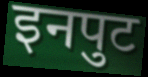
इनपुट